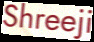
Shreeji